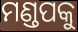
ମଣ୍ଡପକୁ